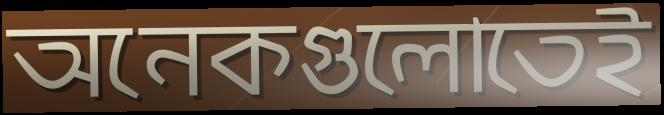
অনেকগুলোতেই